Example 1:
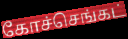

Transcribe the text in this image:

கோச்செங்கட்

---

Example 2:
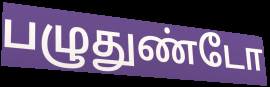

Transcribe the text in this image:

பழுதுண்டோ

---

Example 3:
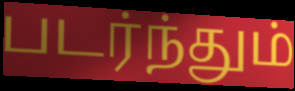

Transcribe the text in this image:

படர்ந்தும்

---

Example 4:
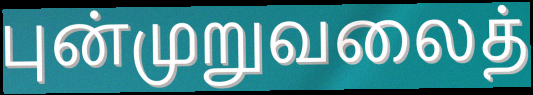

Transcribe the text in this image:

புன்முறுவலைத்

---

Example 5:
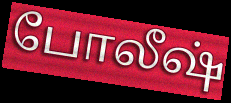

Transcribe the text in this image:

போலீஷ்